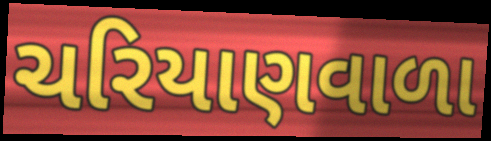
ચરિયાણવાળા